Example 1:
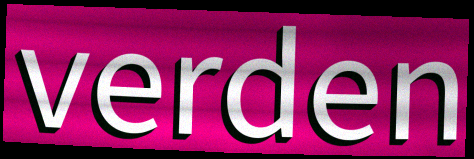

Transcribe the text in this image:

verden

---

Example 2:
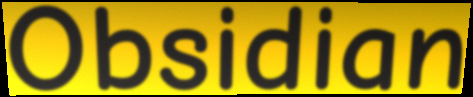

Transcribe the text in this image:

Obsidian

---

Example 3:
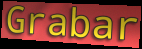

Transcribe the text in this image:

Grabar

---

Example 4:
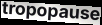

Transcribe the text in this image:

tropopause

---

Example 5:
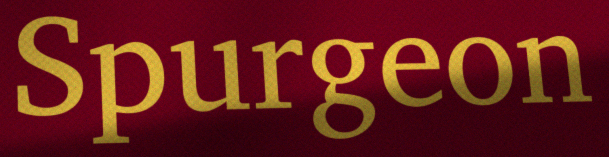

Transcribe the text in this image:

Spurgeon